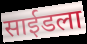
साईडला